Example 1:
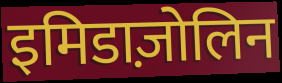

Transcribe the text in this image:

इमिडाज़ोलिन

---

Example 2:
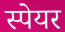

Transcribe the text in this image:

स्पेयर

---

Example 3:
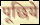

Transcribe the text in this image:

पूछिये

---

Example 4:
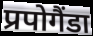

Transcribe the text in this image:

प्रपोगैंडा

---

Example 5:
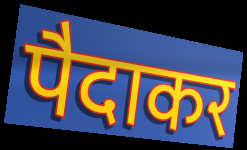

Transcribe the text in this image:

पैदाकर